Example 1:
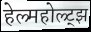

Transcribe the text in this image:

हेल्महोल्ट्झ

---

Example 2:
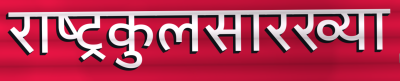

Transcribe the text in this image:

राष्ट्रकुलसारख्या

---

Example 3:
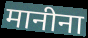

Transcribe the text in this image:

मानीना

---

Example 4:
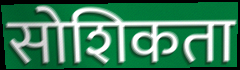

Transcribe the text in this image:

सोशिकता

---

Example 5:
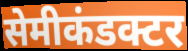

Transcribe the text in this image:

सेमीकंडक्टर